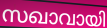
സഖാവായി